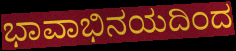
ಭಾವಾಭಿನಯದಿಂದ